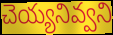
చెయ్యనివ్వని